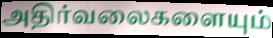
அதிர்வலைகளையும்